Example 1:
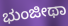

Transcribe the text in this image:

ಭುಂಜೀಥಾ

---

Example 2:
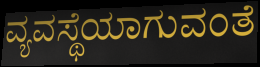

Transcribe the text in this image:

ವ್ಯವಸ್ಥೆಯಾಗುವಂತೆ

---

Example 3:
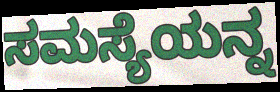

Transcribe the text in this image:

ಸಮಸ್ಯೆಯನ್ನ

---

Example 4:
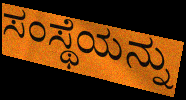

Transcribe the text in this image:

ಸಂಸ್ಥೆಯನ್ನು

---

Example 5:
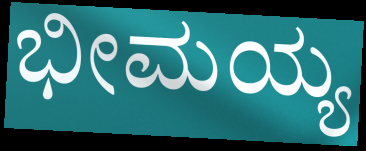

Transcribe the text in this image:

ಭೀಮಯ್ಯ